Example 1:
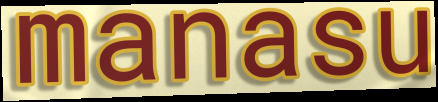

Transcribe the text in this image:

manasu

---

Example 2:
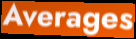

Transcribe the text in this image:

Averages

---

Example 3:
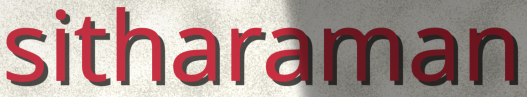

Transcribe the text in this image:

sitharaman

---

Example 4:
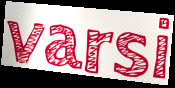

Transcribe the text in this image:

varsi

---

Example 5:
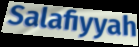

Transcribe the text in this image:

Salafiyyah